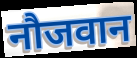
नौजवान